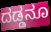
ದಡ್ಡನೂ